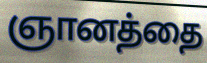
ஞானத்தை